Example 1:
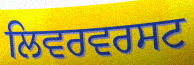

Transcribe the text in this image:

ਲਿਵਰਵਰਸਟ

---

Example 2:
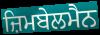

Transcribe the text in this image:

ਜ਼ਿਮਬੇਲਮੈਨ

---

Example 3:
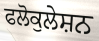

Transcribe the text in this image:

ਫਲੋਕੁਲੇਸ਼ਨ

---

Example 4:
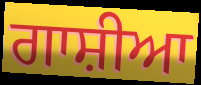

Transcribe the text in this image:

ਗਾਸ਼ੀਆ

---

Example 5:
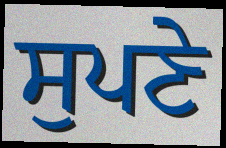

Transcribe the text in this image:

ਸੁਪਣੇ